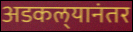
अडकल्यानंतर